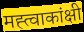
मह्त्वाकांक्षी